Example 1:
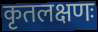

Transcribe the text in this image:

कृतलक्षणः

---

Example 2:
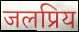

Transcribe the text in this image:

जलप्रिय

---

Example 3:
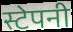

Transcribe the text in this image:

स्टेपनी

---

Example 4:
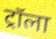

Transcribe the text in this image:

ट्रॉला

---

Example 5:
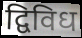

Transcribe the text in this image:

द्विविध